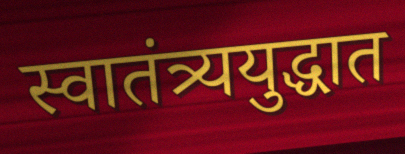
स्वातंत्र्ययुद्धात